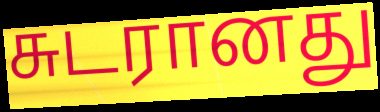
சுடரானது